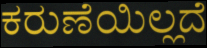
ಕರುಣೆಯಿಲ್ಲದೆ